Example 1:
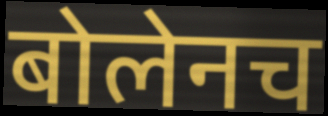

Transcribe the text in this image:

बोलेनच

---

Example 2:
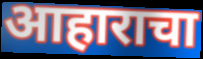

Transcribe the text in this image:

आहाराचा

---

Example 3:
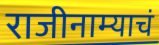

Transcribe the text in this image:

राजीनाम्याचं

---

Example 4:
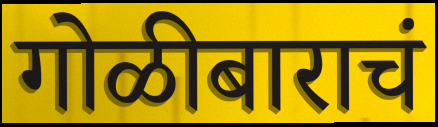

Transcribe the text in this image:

गोळीबाराचं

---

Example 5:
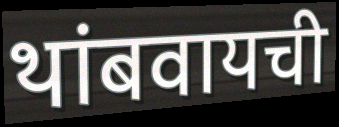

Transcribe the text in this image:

थांबवायची